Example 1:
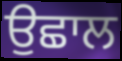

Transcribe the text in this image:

ਉਛਾਲ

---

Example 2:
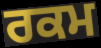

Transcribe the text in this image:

ਰਕਮ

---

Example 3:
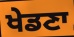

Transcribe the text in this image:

ਖੇਡਣਾ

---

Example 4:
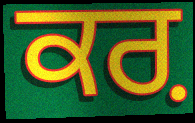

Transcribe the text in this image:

ਕਰ਼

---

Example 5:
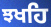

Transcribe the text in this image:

ਝਖਹਿ